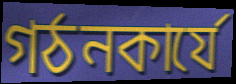
গঠনকার্যে